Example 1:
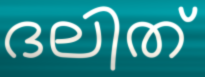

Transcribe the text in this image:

ദലിത്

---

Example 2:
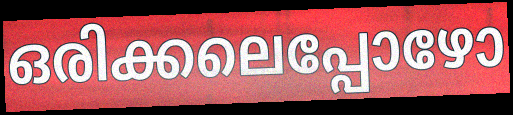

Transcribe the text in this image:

ഒരിക്കലെപ്പോഴോ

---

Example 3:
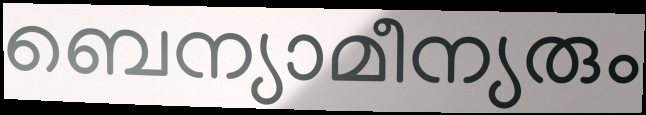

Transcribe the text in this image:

ബെന്യാമീന്യരും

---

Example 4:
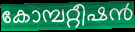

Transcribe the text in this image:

കോമ്പറ്റീഷൻ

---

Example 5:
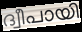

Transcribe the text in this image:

ദ്വീപായി